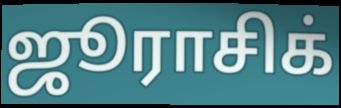
ஜூராசிக்